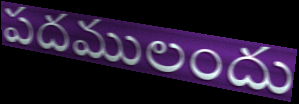
పదములందు